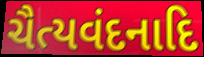
ચૈત્યવંદનાદિ